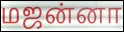
மஜன்னா